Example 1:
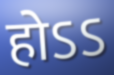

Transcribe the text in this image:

होऽऽ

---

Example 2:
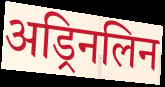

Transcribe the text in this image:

अड्रिनलिन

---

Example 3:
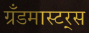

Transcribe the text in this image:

ग्रँडमास्टर्स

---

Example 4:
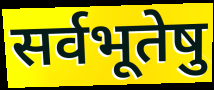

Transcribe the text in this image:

सर्वभूतेषु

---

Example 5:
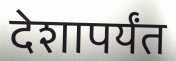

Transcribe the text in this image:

देशापर्यंत